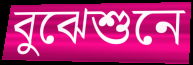
বুঝেশুনে